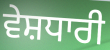
ਵੇਸ਼ਧਾਰੀ